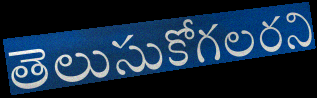
తెలుసుకోగలరని